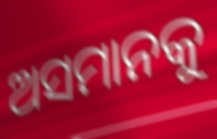
ଅସମାନକୁ